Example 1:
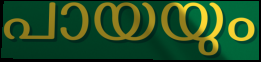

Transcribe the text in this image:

പായയും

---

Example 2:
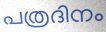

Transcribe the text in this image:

പത്രദിനം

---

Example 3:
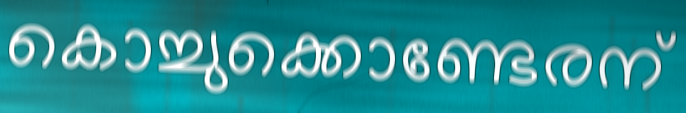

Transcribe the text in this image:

കൊച്ചുക്കൊണ്ടേരന്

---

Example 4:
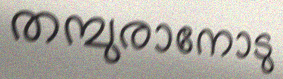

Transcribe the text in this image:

തമ്പുരാനോടു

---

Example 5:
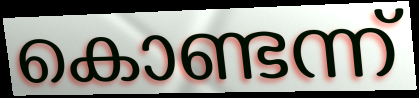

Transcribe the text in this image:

കൊണ്ടന്ന്